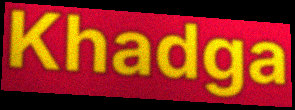
Khadga